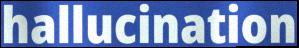
hallucination